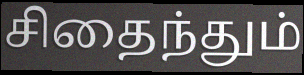
சிதைந்தும்